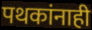
पथकांनाही